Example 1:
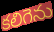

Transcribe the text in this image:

కలిగెను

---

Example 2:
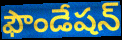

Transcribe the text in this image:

ఫౌండేషన్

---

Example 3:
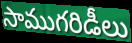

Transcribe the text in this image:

సాముగరిడీలు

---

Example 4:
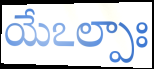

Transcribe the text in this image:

యేఽల్పాః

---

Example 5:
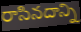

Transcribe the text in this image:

రాసినదాన్ని